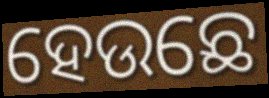
ହେଉଛେ